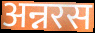
अन्नरस